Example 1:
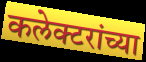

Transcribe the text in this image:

कलेक्टरांच्या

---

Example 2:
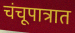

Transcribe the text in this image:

चंचूपात्रात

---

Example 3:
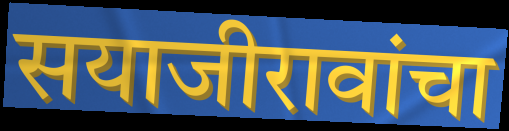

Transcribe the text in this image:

सयाजीरावांचा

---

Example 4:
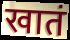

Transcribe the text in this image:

खातं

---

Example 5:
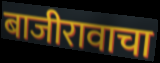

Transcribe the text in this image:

बाजीरावाचा